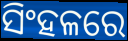
ସିଂହଳରେ